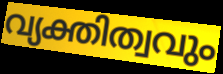
വ്യക്തിത്വവും